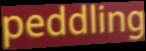
peddling